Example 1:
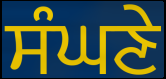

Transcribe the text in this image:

ਸੰਘਣੇ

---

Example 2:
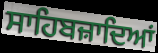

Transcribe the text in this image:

ਸਾਹਿਬਜ਼ਾਦਿਆਂ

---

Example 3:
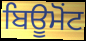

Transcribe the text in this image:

ਬਿਊਮੋਂਟ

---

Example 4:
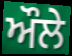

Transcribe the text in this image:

ਔਲੇ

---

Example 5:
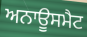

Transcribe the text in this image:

ਅਨਾਊਸਮੈਟ